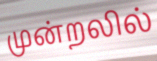
முன்றலில்